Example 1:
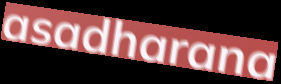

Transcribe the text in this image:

asadharana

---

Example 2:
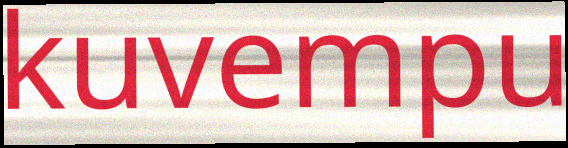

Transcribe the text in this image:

kuvempu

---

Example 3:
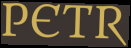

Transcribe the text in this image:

PETR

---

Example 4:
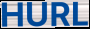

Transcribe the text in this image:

HURL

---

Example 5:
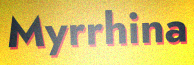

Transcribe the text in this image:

Myrrhina